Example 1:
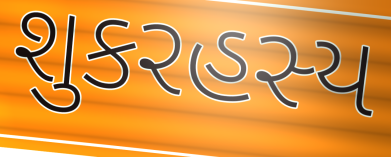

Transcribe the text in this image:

શુકરહસ્ય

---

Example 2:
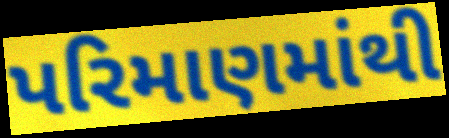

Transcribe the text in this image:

પરિમાણમાંથી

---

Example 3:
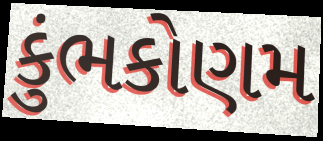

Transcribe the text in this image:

કુંભકોણમ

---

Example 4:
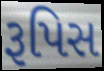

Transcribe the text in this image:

રૂપિસ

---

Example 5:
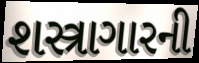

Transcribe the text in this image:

શસ્ત્રાગારની